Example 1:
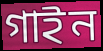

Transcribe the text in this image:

গাইন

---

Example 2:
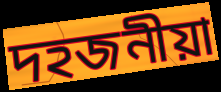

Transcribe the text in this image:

দহজনীয়া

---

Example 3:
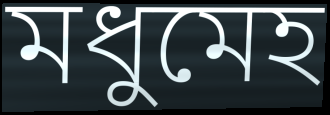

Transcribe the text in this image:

মধুমেহ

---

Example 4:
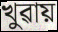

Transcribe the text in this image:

খুৱায়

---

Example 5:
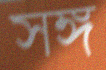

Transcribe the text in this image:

সঙ্গ